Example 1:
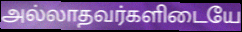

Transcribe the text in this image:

அல்லாதவர்களிடையே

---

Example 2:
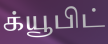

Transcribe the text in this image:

க்யூபிட்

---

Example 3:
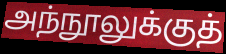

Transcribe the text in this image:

அந்நூலுக்குத்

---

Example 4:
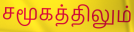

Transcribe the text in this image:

சமூகத்திலும்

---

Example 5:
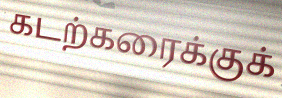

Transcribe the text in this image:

கடற்கரைக்குக்